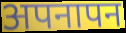
अपनापन